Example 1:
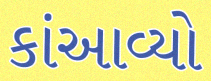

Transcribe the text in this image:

કાંઆવ્યો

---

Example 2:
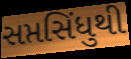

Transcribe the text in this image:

સપ્તસિંધુથી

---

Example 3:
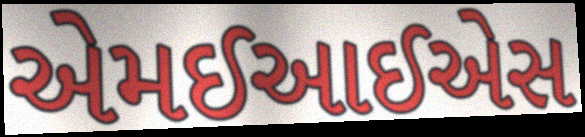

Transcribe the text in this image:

એમઈઆઈએસ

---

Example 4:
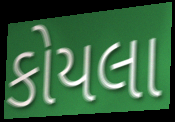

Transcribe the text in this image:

કોયલા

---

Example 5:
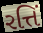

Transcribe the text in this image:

રત્તિં